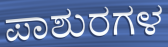
ಪಾಶುರಗಳ